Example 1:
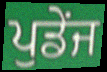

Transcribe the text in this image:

ਪੁਡੇਂਜ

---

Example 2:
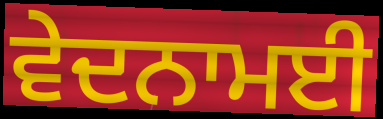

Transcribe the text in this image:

ਵੇਦਨਾਮਈ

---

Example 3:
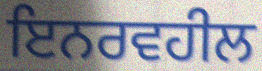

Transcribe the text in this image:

ਇਨਰਵਹੀਲ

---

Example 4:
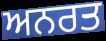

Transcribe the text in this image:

ਅਨਰਤ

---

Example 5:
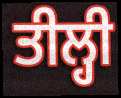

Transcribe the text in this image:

ਤੀਲ੍ਹੀ